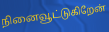
நினைவூட்டுகிறேன்